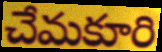
చేమకూరి